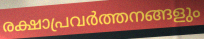
രക്ഷാപ്രവർത്തനങ്ങളും